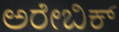
ಅರೇಬಿಕ್